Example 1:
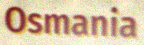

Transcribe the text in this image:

Osmania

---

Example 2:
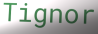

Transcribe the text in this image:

Tignor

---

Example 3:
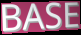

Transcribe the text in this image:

BASE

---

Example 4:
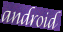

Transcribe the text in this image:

android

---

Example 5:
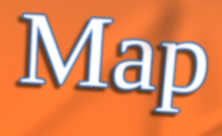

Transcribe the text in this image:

Map